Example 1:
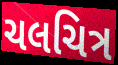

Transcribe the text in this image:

ચલચિત્ર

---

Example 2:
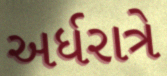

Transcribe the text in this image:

અર્ધરાત્રે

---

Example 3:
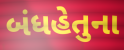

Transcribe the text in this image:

બંધહેતુના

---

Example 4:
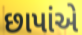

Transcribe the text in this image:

છાપાંએ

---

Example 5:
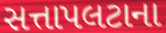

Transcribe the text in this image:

સત્તાપલટાના